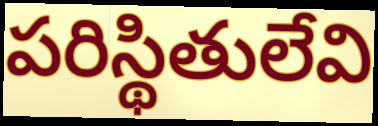
పరిస్థితులేవి